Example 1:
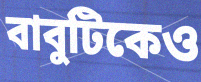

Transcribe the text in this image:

বাবুটিকেও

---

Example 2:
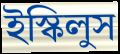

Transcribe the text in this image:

ইস্কিলুস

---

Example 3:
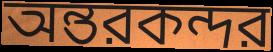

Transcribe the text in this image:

অন্তরকন্দর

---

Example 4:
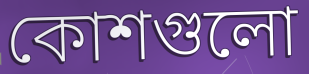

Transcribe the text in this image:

কোশগুলো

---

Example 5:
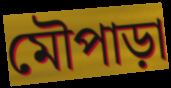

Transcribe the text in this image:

মৌপাড়া